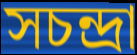
সচন্দ্রা